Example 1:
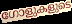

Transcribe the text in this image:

ഗോളുകളുടെ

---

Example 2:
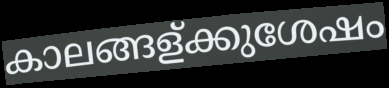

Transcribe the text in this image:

കാലങ്ങള്ക്കുശേഷം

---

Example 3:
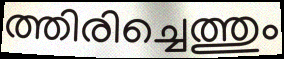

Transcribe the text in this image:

ത്തിരിച്ചെത്തും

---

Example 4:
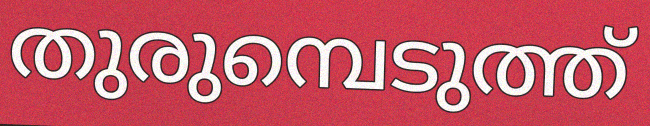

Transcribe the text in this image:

തുരുമ്പെടുത്ത്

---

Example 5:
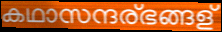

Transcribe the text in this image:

കഥാസന്ദര്ഭങ്ങള്